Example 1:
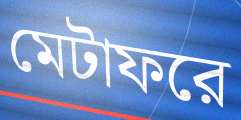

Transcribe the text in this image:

মেটাফরে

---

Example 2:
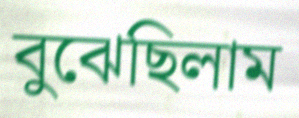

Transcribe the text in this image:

বুঝেছিলাম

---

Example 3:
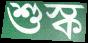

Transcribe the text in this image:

শুস্ক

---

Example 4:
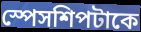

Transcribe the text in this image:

স্পেসশিপটাকে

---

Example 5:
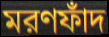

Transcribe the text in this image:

মরণফাঁদ